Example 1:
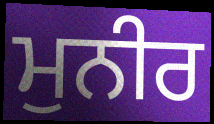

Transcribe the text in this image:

ਮੁਨੀਰ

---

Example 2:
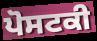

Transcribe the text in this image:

ਪੋਸਟਕੀ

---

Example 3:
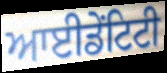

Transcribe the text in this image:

ਆਈਡੇਂਟਿਟੀ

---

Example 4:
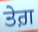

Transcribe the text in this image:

ਤੇਗ਼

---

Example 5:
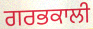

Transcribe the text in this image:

ਗਰਭਕਾਲੀ